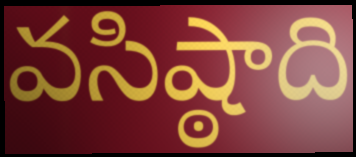
వసిష్ఠాది